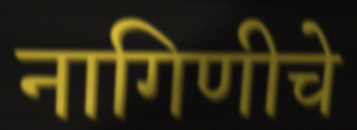
नागिणीचे